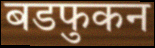
बडफुकन